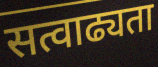
सत्वाढ्यता